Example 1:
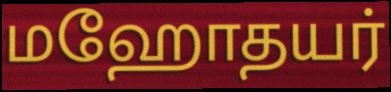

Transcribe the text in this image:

மஹோதயர்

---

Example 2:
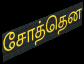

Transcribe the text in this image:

சோத்தென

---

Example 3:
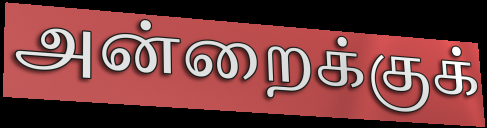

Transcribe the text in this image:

அன்றைக்குக்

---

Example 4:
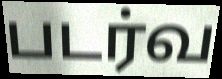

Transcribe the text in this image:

படர்வ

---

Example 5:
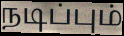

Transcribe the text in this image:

நடிப்பும்